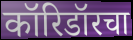
कॉरिडॉरचा